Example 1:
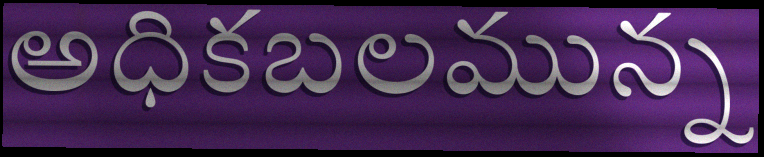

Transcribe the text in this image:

అధికబలమున్న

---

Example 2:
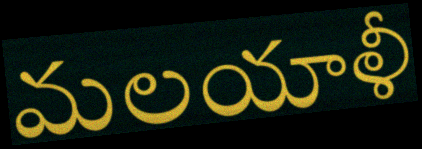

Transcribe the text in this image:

మలయాళీ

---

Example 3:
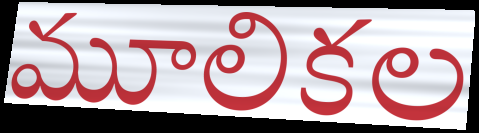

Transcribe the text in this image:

మూలికల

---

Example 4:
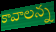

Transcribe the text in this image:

కావాలన్న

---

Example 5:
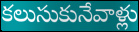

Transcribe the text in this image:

కలుసుకునేవాళ్లు